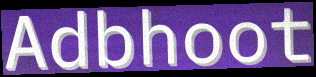
Adbhoot